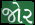
જોર